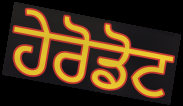
ਹੇਰੋਡੋਟ